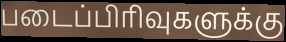
படைப்பிரிவுகளுக்கு